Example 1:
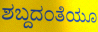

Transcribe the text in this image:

ಶಬ್ದದಂತೆಯೂ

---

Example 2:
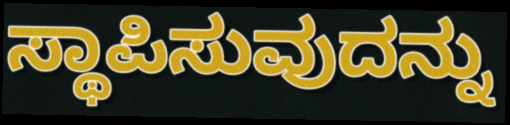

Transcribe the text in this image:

ಸ್ಥಾಪಿಸುವುದನ್ನು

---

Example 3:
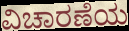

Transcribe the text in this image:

ವಿಚಾರಣೆಯ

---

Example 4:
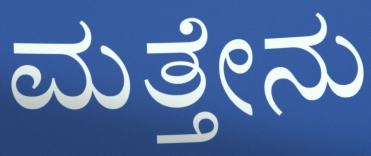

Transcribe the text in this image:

ಮತ್ತೇನು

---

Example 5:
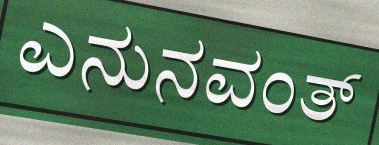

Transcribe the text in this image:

ಎನುನವಂತ್